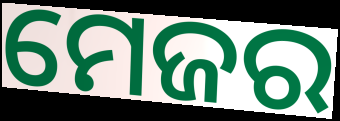
ମେଜର